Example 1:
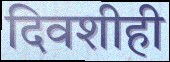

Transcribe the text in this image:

दिवशीही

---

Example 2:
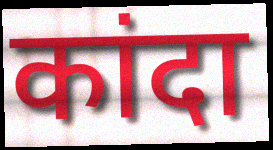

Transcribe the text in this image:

कांदा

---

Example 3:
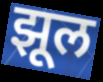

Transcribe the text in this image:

झूल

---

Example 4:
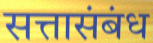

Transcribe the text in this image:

सत्तासंबंध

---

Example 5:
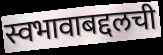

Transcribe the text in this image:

स्वभावाबद्दलची